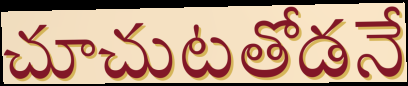
చూచుటతోడనే